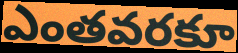
ఎంతవరకూ